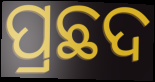
ପ୍ରଛଦ